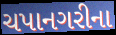
ચપાનગરીના